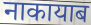
नाकायाब